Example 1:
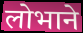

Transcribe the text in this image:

लोभाने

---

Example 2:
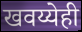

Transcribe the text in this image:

खवय्येही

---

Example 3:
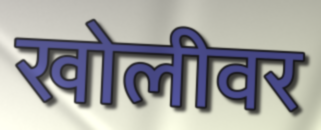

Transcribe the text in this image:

खोलीवर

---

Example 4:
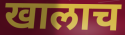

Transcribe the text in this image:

खालाच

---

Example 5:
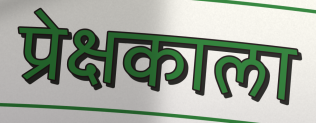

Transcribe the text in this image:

प्रेक्षकाला